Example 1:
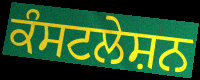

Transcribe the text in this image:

ਕੰਸਟਲੇਸ਼ਨ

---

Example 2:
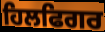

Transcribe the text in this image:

ਹਿਲਫਿਗਰ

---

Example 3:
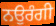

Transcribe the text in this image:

ਨਉਰੰਗੀ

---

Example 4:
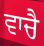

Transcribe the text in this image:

ਵਾਚੈ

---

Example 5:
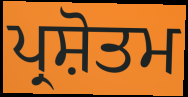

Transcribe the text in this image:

ਪ੍ਰਸ਼ੋਤਮ